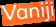
Vaniji